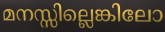
മനസ്സില്ലെങ്കിലോ